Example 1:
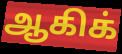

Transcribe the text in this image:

ஆகிக்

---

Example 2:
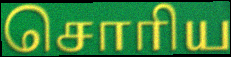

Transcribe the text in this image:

சொரிய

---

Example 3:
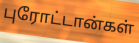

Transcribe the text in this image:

புரோட்டான்கள்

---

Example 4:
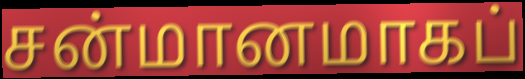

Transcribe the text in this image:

சன்மானமாகப்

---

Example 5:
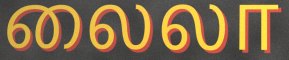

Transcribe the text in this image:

லைலா